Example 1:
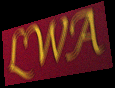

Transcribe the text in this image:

LWA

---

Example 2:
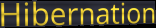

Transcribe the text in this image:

Hibernation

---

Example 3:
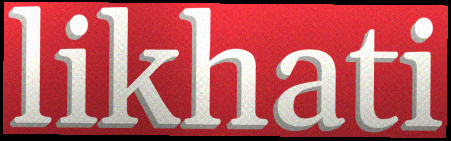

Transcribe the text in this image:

likhati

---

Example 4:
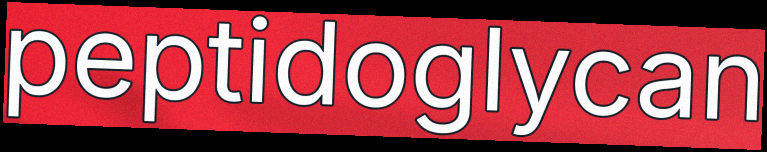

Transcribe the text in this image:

peptidoglycan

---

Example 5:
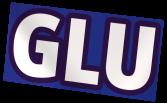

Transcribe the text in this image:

GLU